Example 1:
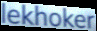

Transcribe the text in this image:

lekhoker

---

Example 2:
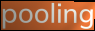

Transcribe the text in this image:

pooling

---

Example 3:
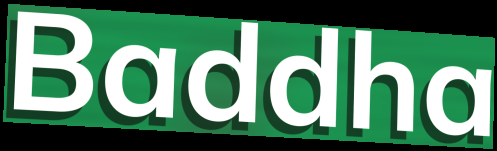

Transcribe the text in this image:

Baddha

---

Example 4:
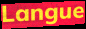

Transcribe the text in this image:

Langue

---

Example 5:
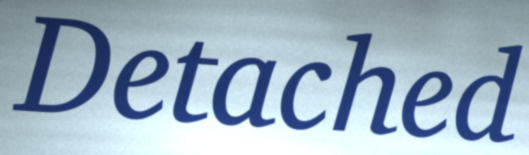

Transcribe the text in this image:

Detached